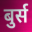
बुर्स